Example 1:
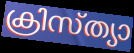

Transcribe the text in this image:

ക്രിസ്‌ത്യാ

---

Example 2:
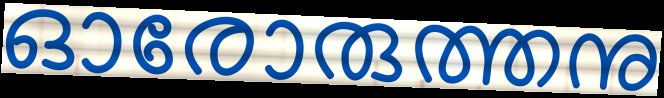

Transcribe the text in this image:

ഓരോരുത്തനു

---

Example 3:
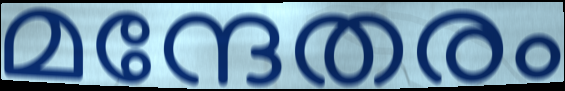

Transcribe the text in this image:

മന്ദേതരം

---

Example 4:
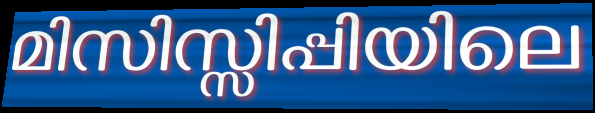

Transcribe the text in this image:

മിസിസ്സിപ്പിയിലെ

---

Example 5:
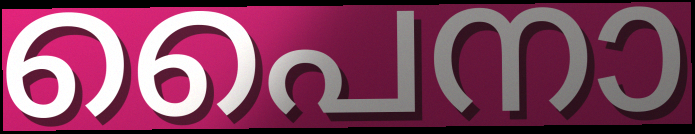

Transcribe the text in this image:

പൈനാ